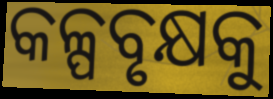
କଳ୍ପବୃକ୍ଷକୁ